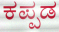
ಕಪ್ಪಡ